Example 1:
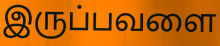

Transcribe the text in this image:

இருப்பவளை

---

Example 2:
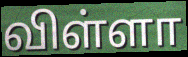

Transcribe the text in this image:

விள்ளா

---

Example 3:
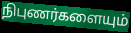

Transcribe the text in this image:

நிபுணர்களையும்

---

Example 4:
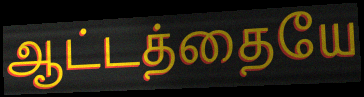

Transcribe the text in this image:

ஆட்டத்தையே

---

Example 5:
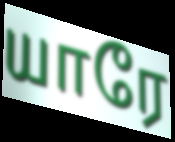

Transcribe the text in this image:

யாரே